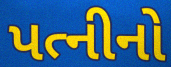
પત્નીનો